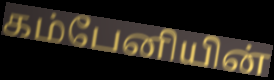
கம்பேனியின்